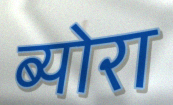
ब्योरा